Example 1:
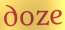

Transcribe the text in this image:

doze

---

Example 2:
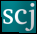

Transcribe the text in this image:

scj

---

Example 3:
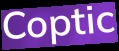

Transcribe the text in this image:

Coptic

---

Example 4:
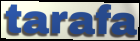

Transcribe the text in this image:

tarafa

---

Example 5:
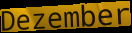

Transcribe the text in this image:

Dezember